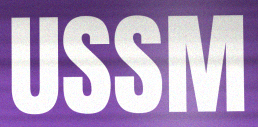
USSM